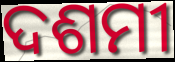
ଦଶମୀ